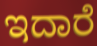
ಇದಾರೆ